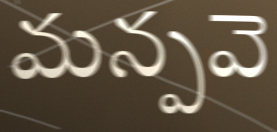
మన్పవె